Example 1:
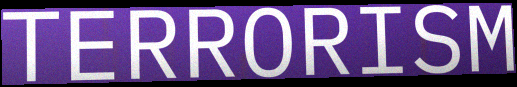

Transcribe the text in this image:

TERRORISM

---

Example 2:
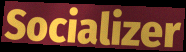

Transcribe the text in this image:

Socializer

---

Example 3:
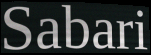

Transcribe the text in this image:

Sabari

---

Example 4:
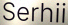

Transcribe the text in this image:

Serhii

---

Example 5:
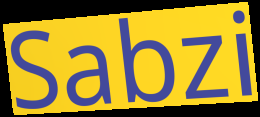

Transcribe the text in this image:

Sabzi